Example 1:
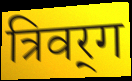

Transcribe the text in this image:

त्रिवर्ग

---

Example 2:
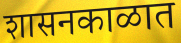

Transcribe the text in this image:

शासनकाळात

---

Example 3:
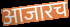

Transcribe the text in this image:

आजारच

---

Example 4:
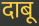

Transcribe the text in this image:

दाबू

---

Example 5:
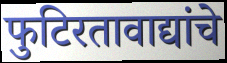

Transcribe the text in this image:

फुटिरतावाद्यांचे